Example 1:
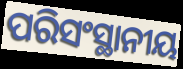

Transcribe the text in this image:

ପରିସଂସ୍ଥାନୀୟ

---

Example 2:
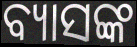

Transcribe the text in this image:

ବ୍ୟାସଙ୍କ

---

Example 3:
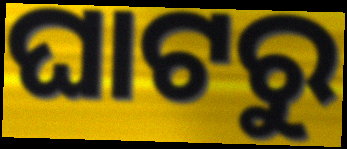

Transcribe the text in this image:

ଘାଟରୁ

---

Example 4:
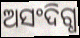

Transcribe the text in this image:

ଅସଂଦିଗ୍ଧ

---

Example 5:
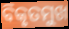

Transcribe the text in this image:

ବିକୃତମୁଖ